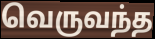
வெருவந்த